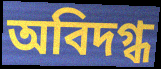
অবিদগ্ধ